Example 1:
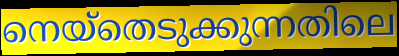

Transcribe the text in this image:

നെയ്തെടുക്കുന്നതിലെ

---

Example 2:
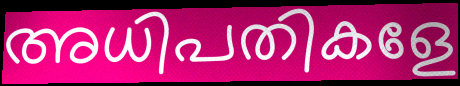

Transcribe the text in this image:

അധിപതികളേ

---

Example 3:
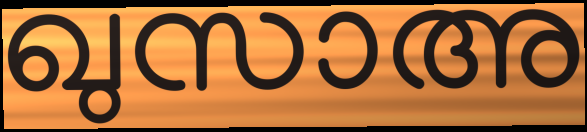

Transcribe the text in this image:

ഖുസാഅ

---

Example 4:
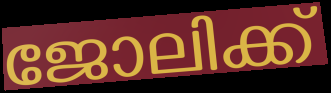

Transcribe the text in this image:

ജോലിക്ക്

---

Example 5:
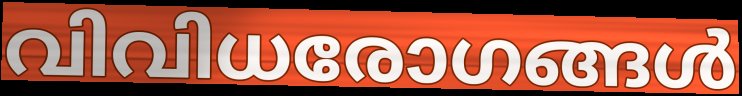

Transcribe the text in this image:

വിവിധരോഗങ്ങൾ